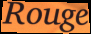
Rouge